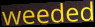
weeded